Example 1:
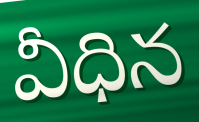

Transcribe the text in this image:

వీధిన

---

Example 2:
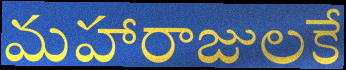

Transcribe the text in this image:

మహారాజులకే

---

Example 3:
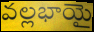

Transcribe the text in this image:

వల్లభాయై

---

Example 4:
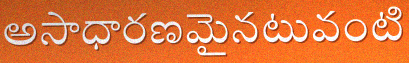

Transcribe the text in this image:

అసాధారణమైనటువంటి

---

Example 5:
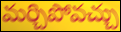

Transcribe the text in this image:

మర్చిపోవచ్చు